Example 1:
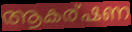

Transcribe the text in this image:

ആകര്ഷണ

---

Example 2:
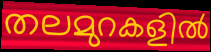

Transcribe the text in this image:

തലമുറകളിൽ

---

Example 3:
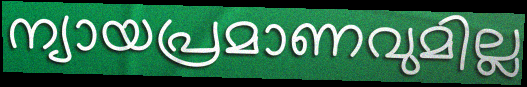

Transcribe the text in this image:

ന്യായപ്രമാണവുമില്ല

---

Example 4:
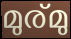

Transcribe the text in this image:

മുര്മു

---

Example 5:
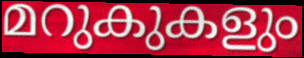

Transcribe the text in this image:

മറുകുകളും